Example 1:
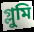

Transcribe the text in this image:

গ্লুমি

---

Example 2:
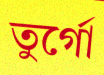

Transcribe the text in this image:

তুর্গো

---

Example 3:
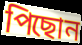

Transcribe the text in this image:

পিছোন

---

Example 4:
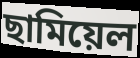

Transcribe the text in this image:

ছামিয়েল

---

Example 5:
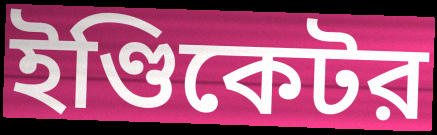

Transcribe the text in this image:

ইণ্ডিকেটর